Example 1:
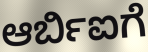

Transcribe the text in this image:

ಆರ್ಬಿಐಗೆ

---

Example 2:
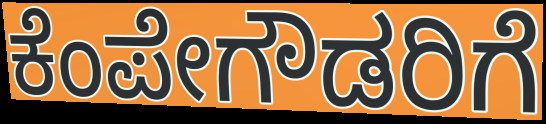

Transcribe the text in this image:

ಕೆಂಪೇಗೌಡರಿಗೆ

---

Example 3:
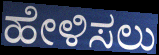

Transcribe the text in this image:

ಹೇಳಿಸಲು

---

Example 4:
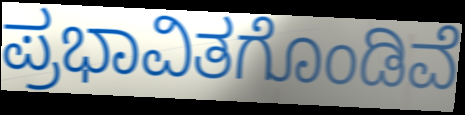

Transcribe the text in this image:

ಪ್ರಭಾವಿತಗೊಂಡಿವೆ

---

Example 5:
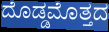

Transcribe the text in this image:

ದೊಡ್ಡಮೊತ್ತದ